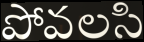
పోవలసి